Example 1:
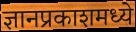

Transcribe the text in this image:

ज्ञानप्रकाशमध्ये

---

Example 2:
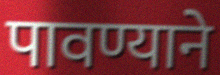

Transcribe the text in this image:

पावण्याने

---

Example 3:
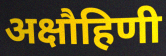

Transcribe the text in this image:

अक्षौहिणी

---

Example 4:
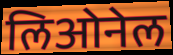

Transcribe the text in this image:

लिओनेल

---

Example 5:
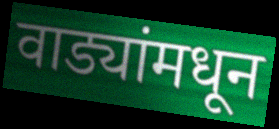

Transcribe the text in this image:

वाड्यांमधून